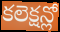
కలెక్షన్లో